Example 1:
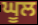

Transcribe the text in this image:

ਘੂਲ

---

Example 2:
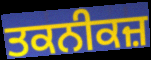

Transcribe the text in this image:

ਤਕਨੀਕਜ਼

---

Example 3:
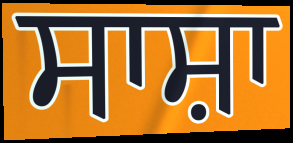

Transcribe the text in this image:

ਸਾਸ਼ਾ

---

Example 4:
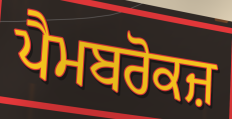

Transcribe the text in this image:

ਪੈਮਬਰੋਕਜ਼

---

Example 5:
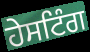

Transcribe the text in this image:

ਹੇਸਟਿੰਗ